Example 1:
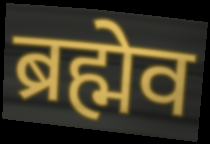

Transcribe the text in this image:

ब्रह्मेव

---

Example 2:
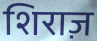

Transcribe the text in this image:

शिराज़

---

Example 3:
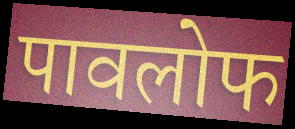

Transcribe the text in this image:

पावलोफ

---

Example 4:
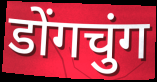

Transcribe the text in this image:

डोंगचुंग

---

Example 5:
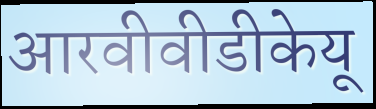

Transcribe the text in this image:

आरवीवीडीकेयू